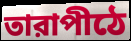
তারাপীঠে